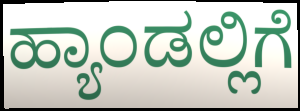
ಹ್ಯಾಂಡಲ್ಲಿಗೆ